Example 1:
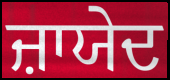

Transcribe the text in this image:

ਜ਼ਾਯੇਦ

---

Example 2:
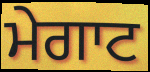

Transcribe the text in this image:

ਮੇਗਾਟ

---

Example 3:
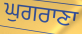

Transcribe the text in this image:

ਘੁਗਰਾਣਾ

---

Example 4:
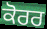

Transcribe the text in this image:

ਕੋਰਰ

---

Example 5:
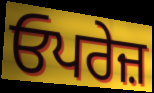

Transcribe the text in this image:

ਓਪਰੇਜ਼